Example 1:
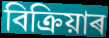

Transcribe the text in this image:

বিক্ৰিয়াৰ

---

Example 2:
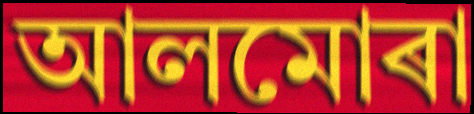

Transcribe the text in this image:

আলমোৰা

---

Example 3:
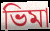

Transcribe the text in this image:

ভিমা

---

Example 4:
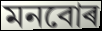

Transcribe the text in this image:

মনবোৰ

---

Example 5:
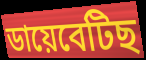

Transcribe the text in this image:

ডায়েবেটিছ